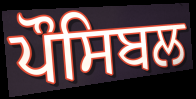
ਪੌਸਿਬਲ